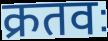
क्रतवः